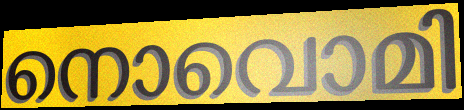
നൊവൊമി